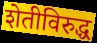
शेतीविरुद्ध